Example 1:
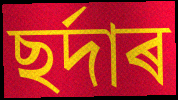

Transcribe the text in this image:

ছৰ্দাৰ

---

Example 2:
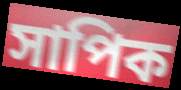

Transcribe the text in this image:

সাপিক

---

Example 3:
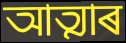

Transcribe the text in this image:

আত্মাৰ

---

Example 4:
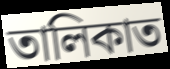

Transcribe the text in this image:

তালিকাত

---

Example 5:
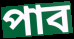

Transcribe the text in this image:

পাব